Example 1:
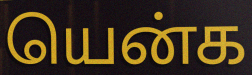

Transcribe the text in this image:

யென்க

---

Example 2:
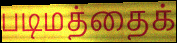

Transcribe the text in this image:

படிமத்தைக்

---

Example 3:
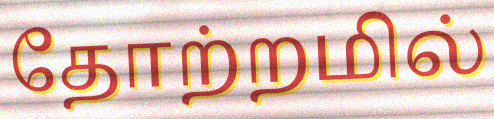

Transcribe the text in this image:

தோற்றமில்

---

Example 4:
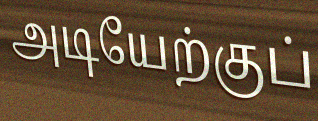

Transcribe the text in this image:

அடியேற்குப்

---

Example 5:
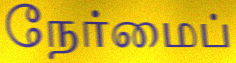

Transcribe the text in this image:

நேர்மைப்